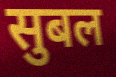
सुबल